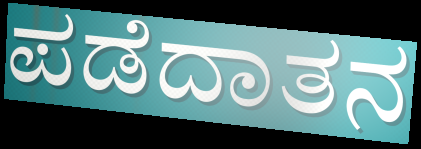
ಪಡೆದಾತನ